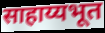
साहाय्यभूत